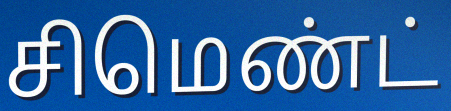
சிமெண்ட்